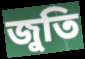
জুতি